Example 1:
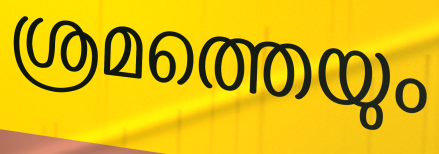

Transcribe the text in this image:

ശ്രമത്തെയും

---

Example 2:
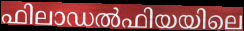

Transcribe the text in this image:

ഫിലാഡൽഫിയയിലെ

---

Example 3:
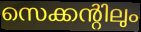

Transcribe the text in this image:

സെക്കന്റിലും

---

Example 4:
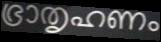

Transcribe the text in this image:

ഭ്രാതൃഹണം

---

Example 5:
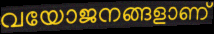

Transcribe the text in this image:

വയോജനങ്ങളാണ്